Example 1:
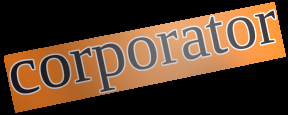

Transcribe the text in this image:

corporator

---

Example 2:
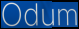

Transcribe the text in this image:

Odum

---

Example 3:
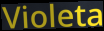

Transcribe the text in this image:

Violeta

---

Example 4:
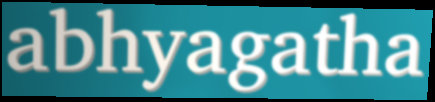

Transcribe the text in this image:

abhyagatha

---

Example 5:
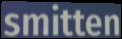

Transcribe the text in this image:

smitten